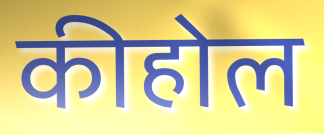
कीहोल